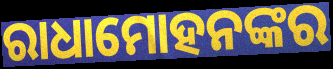
ରାଧାମୋହନଙ୍କର